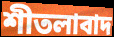
শীতলাবাদ